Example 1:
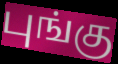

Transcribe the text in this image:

புங்கு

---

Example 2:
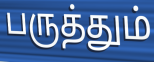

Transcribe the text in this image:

பருத்தும்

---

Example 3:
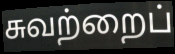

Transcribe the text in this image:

சுவற்றைப்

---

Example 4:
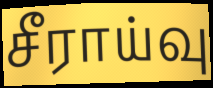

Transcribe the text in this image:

சீராய்வு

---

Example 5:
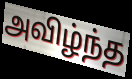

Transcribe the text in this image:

அவிழ்ந்த